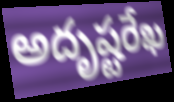
అదృష్టరేఖ